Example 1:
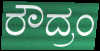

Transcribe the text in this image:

ರೌದ್ರಂ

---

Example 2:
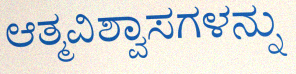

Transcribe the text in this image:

ಆತ್ಮವಿಶ್ವಾಸಗಳನ್ನು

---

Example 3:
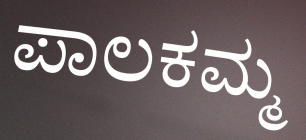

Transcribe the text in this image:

ಪಾಲಕಮ್ಮ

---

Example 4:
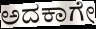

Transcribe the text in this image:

ಅದಕಾಗೇ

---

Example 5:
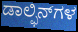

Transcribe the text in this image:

ಡಾಲ್ಫಿನ್‌ಗಳ